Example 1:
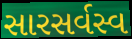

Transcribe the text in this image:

સારસર્વસ્વ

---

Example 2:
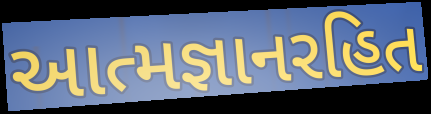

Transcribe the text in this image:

આત્મજ્ઞાનરહિત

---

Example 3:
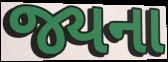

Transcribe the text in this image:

જ્યના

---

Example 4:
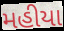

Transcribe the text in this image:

મહીયા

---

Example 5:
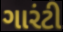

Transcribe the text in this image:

ગારંટી